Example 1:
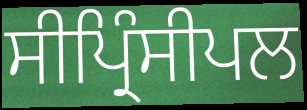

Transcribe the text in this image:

ਸੀਪ੍ਰਿੰਸੀਪਲ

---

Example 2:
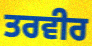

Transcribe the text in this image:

ਤਰਵੀਰ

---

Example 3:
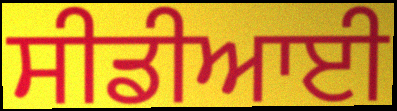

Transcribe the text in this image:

ਸੀਡੀਆਈ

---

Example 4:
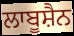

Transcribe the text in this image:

ਲਾਬੂਸ਼ੈਨ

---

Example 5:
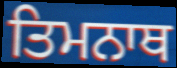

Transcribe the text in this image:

ਤਿਮਨਾਥ